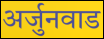
अर्जुनवाड